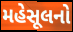
મહેસૂલનો